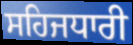
ਸਹਿਜਧਾਰੀ